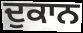
ਦੁਕਾਨ